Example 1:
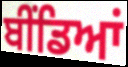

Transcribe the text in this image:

ਬੀਂਡਿਆਂ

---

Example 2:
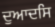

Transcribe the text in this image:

ਦੁਆਦਸਿ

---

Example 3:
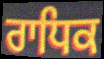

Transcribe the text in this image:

ਰਾਧਿਕ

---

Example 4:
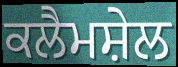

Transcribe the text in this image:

ਕਲੈਮਸ਼ੇਲ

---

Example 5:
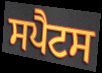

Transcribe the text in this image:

ਸਪੈਟਸ